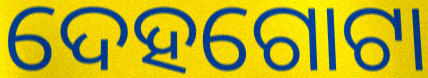
ଦେହଗୋଟା